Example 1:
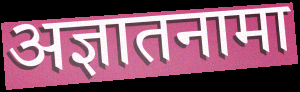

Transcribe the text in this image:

अज्ञातनामा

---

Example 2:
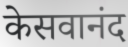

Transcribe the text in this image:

केसवानंद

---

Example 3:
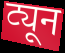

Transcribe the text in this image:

ट्यून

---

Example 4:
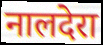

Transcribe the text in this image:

नालदेरा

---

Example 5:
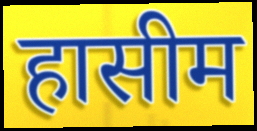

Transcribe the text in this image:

हासीम